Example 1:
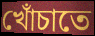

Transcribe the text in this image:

খোঁচাতে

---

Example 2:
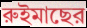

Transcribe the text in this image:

রুইমাছের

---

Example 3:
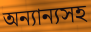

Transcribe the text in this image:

অন্যান্যসহ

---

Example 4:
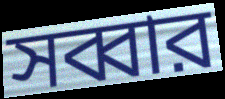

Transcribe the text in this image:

সব্বার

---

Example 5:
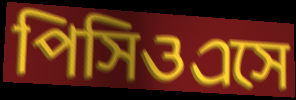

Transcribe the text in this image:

পিসিওএসে